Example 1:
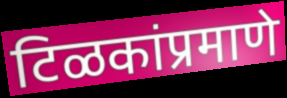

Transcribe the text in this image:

टिळकांप्रमाणे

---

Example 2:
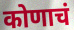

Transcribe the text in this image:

कोणाचं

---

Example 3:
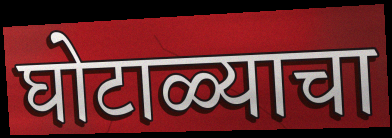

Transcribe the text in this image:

घोटाळ्याचा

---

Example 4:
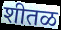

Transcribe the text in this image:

शीतळ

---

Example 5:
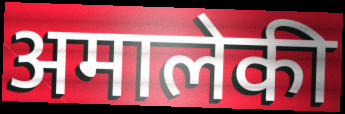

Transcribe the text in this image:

अमालेकी